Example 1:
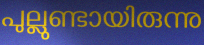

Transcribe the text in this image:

പുല്ലുണ്ടായിരുന്നു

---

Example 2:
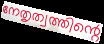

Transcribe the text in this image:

നേതൃത്വത്തിന്റെ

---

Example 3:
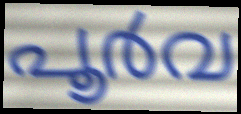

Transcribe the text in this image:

പൂർവ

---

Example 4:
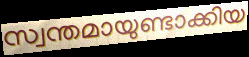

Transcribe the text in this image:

സ്വന്തമായുണ്ടാക്കിയ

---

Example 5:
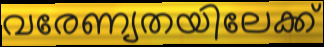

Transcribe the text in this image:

വരേണ്യതയിലേക്ക്